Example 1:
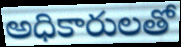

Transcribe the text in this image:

అధికారులతో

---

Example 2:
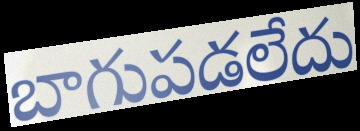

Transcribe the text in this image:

బాగుపడలేదు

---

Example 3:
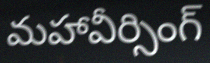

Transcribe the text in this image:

మహావీర్సింగ్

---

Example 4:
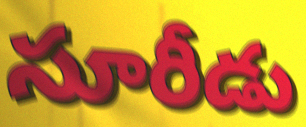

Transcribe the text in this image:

సూరీడు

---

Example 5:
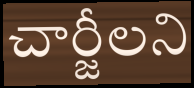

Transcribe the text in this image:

చార్జీలని